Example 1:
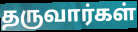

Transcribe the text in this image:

தருவார்கள்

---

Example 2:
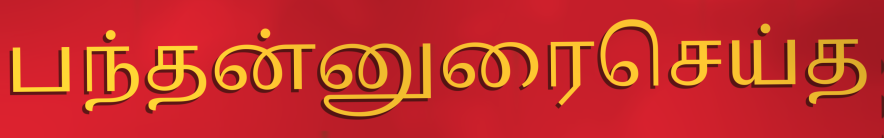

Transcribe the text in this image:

பந்தன்னுரைசெய்த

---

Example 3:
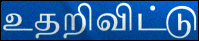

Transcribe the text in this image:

உதறிவிட்டு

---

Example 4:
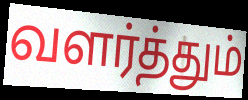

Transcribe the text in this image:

வளர்த்தும்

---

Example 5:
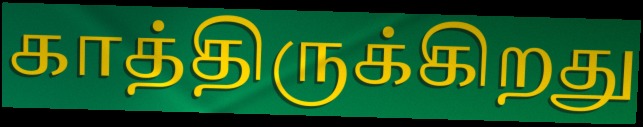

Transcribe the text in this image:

காத்திருக்கிறது